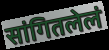
सांगितलेलं